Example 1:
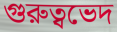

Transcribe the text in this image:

গুরুত্বভেদ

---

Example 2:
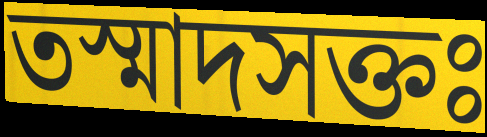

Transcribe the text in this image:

তস্মাদসক্তঃ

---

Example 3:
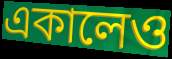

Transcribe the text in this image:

একালেও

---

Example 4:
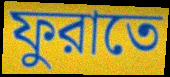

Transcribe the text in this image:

ফুরাতে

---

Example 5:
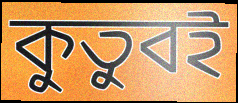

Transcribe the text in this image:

কুতুবই